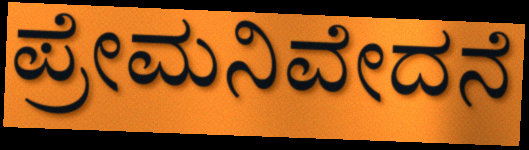
ಪ್ರೇಮನಿವೇದನೆ